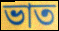
ভাত